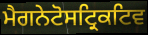
ਮੈਗਨੇਟੋਸਟ੍ਰਿਕਟਿਵ